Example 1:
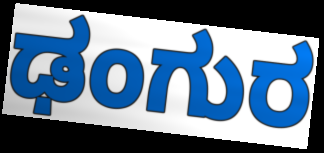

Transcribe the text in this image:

ಢಂಗುರ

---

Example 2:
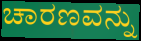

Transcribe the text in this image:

ಚಾರಣವನ್ನು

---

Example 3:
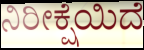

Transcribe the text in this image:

ನಿರೀಕ್ಷೆಯಿದೆ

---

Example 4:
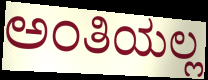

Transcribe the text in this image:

ಅಂತಿಯಲ್ಲ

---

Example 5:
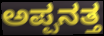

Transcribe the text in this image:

ಅಪ್ಪನತ್ತ